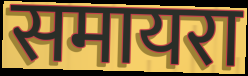
समायरा